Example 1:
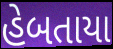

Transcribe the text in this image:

હેબતાયા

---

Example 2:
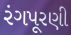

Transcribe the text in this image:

રંગપૂરણી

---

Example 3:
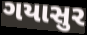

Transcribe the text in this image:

ગયાસુર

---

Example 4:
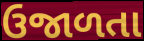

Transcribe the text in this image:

ઉજાળતા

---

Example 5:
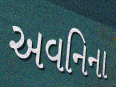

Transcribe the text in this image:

અવનિના